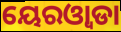
ୟେରଓ୍ୱାଡା